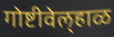
गोष्टीवेल्हाळ